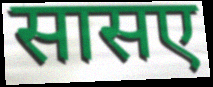
सासए